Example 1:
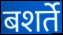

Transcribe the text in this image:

बशर्ते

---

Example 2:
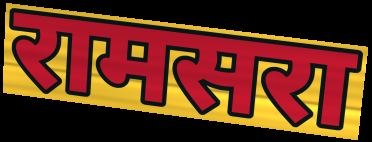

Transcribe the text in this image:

रामसरा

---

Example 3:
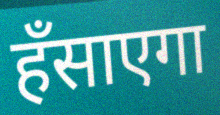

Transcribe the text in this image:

हँसाएगा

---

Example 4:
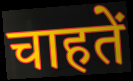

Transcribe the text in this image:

चाहतें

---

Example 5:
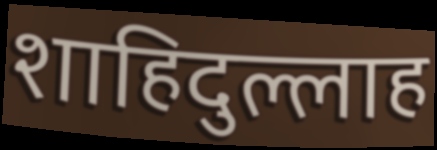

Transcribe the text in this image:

शाहिदुल्लाह